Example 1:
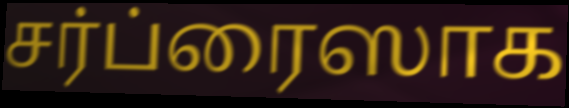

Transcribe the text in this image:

சர்ப்ரைஸாக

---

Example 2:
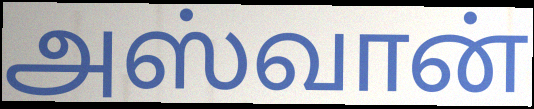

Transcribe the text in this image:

அஸ்வான்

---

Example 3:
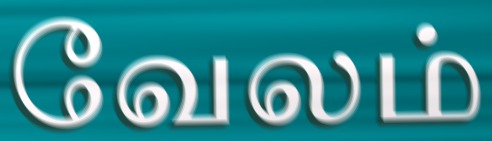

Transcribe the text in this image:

வேலம்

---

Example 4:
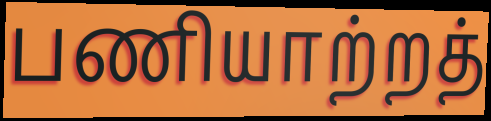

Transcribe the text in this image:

பணியாற்றத்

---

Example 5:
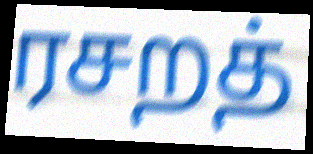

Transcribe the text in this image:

ரசறத்